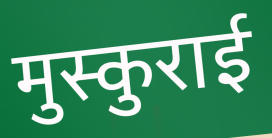
मुस्कुराई